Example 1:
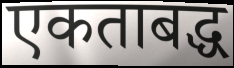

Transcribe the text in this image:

एकताबद्ध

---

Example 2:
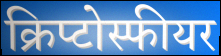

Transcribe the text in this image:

क्रिप्टोस्फीयर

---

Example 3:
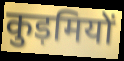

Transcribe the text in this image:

कुड़मियों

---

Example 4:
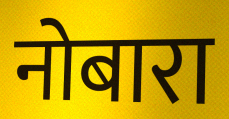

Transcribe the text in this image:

नोबारा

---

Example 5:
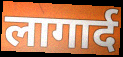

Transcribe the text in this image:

लागार्द